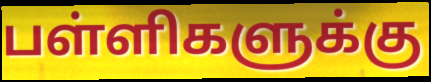
பள்ளிகளுக்கு